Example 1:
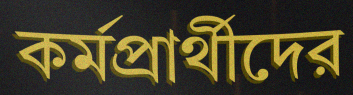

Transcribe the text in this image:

কর্মপ্রার্থীদের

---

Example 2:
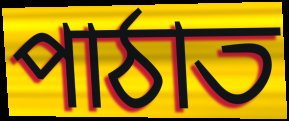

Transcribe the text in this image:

পাঠাত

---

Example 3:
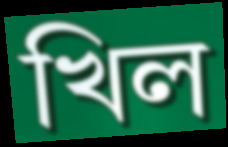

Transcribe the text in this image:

খিল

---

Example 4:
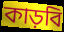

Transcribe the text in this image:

কাড়বি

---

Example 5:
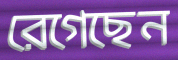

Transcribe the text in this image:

রেগেছেন